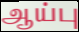
ஆய்பு